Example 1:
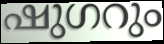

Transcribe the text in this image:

ഷുഗറും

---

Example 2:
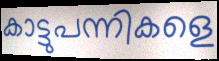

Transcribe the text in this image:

കാട്ടുപന്നികളെ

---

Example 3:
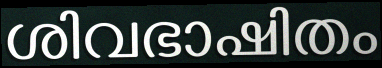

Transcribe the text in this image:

ശിവഭാഷിതം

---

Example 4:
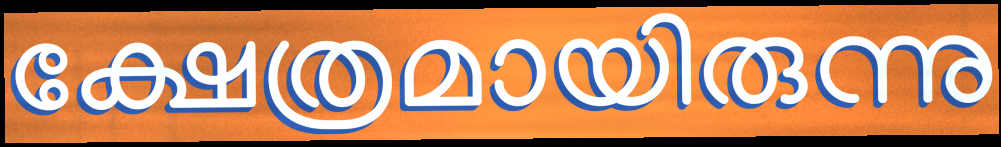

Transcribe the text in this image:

ക്ഷേത്രമായിരുന്നു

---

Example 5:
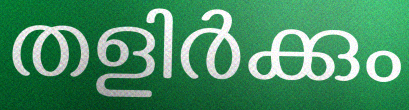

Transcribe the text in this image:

തളിർക്കും